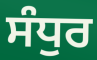
ਸੰਧੁਰ